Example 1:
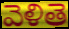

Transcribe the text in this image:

వెళితె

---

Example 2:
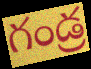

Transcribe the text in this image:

గండ్ర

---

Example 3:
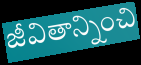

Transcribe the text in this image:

జీవితాన్నించి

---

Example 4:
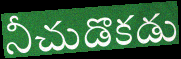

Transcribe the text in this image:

నీచుడొకడు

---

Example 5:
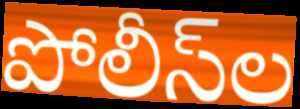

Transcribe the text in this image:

పోలీస్‌ల